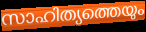
സാഹിത്യത്തെയും